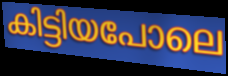
കിട്ടിയപോലെ